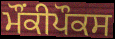
ਮੌਂਕੀਪੌਕਸ